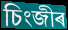
চিংজীৰ